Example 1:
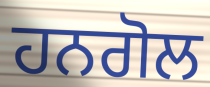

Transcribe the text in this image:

ਹਨਗੋਲ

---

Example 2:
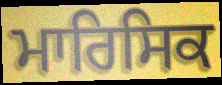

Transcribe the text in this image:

ਮਾਰਿਸਿਕ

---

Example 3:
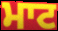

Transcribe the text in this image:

ਮਾਟ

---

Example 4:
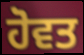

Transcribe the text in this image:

ਹੋਵਤ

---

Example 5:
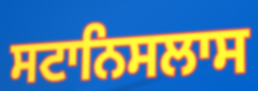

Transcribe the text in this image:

ਸਟਾਨਿਸਲਾਸ